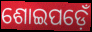
ଶୋଇପଡ଼େଁ